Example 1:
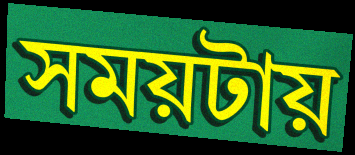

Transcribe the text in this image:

সময়টায়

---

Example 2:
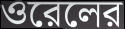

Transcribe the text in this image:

ওরেলের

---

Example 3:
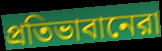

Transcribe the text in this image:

প্রতিভাবানেরা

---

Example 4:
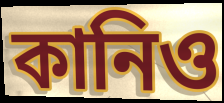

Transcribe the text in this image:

কানিও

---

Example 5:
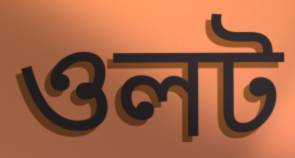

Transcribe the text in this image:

ওলট